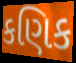
કણિક